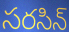
సరసిన్